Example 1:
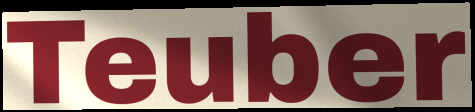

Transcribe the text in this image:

Teuber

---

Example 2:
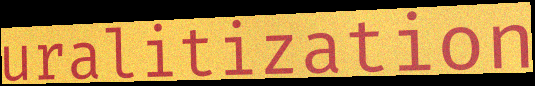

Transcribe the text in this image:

uralitization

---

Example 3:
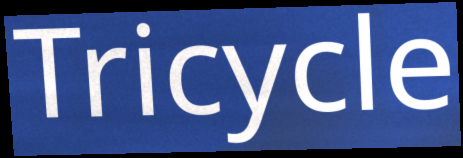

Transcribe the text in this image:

Tricycle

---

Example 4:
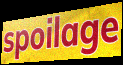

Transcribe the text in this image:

spoilage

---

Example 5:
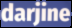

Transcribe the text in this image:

darjine